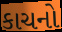
કાચનો